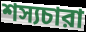
শস্যচারা